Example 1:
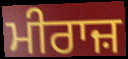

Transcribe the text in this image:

ਮੀਰਾਜ਼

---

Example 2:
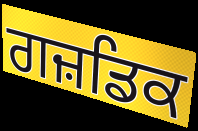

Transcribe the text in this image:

ਗਜ਼ਡਿਕ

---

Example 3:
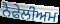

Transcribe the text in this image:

ਨੈਫੇਲੀਅਮ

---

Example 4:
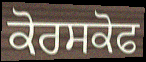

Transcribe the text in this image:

ਕੋਰਸਕੋਫ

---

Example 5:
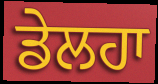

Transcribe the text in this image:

ਡੇਲਹਾ